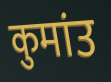
कुमांउ